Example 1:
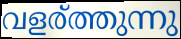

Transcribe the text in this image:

വളര്ത്തുന്നു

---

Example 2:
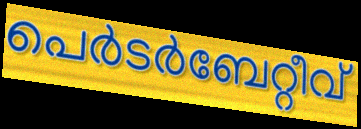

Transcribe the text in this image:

പെർടർബേറ്റീവ്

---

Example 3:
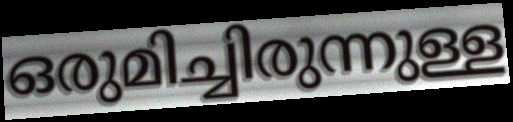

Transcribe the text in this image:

ഒരുമിച്ചിരുന്നുള്ള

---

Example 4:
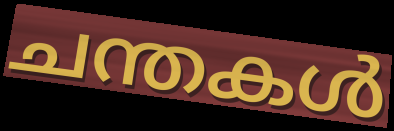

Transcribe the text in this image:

ചന്തകൾ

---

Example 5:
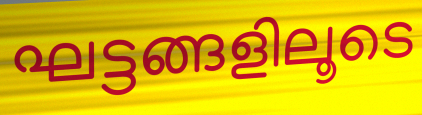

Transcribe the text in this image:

ഘട്ടങ്ങളിലൂടെ